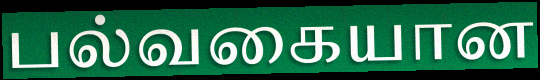
பல்வகையான